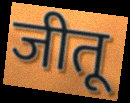
जीतू